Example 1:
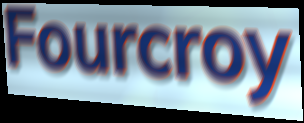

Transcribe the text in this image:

Fourcroy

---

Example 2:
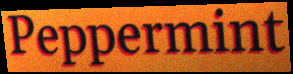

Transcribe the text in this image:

Peppermint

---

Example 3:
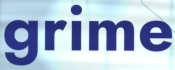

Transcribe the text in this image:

grime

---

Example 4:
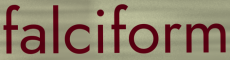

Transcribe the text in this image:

falciform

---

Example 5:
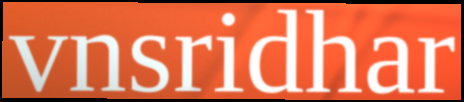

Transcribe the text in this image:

vnsridhar